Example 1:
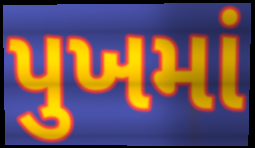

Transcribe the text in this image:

પુખમાં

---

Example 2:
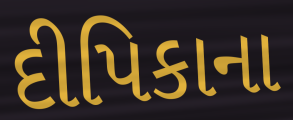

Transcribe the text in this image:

દીપિકાના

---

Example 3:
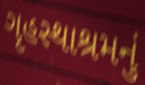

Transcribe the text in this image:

ગૃહસ્થાશ્રમનું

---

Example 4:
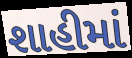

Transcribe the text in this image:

શાહીમાં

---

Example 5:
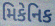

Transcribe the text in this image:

મિકેનિક